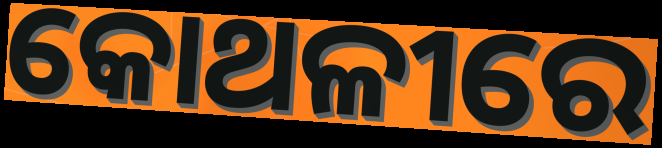
କୋଥଳୀରେ